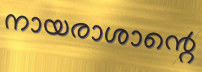
നായരാശാന്റെ